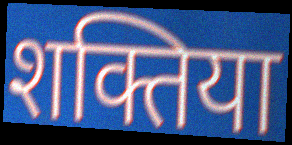
शक्तिया